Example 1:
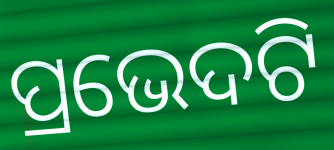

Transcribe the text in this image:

ପ୍ରଭେଦଟି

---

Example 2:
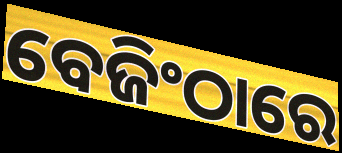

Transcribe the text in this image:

ବେଜିଂଠାରେ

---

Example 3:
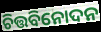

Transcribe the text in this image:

ଚିତ୍ତବିନୋଦନ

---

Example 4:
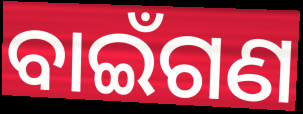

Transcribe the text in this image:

ବାଇଁଗଣ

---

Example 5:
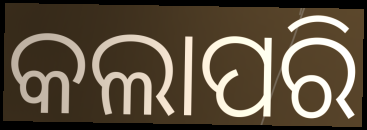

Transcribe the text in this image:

କଲାପରି